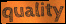
quality